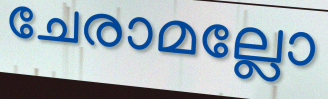
ചേരാമല്ലോ